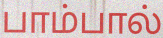
பாம்பால்